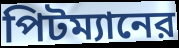
পিটম্যানের